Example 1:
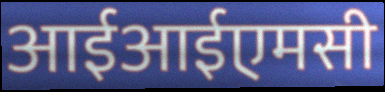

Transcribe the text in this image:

आईआईएमसी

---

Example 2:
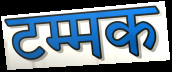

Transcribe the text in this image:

टम्मक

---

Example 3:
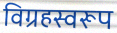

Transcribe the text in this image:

विग्रहस्वरूप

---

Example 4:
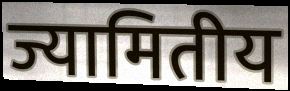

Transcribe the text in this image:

ज्यामितीय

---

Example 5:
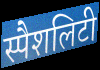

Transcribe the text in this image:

स्पैशलिटी